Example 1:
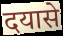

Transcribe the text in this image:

दयासे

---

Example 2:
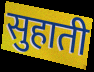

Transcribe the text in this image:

सुहाती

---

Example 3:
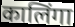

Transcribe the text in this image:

कालिंगा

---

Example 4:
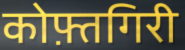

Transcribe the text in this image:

कोफ़्तगिरी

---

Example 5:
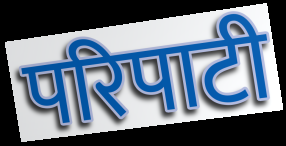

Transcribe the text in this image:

परिपाटी